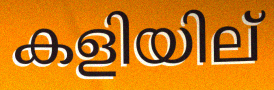
കളിയില്